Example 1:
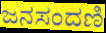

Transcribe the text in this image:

ಜನಸಂದಣಿ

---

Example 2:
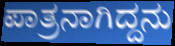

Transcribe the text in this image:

ಪಾತ್ರನಾಗಿದ್ದನು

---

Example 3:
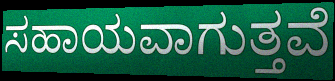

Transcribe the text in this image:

ಸಹಾಯವಾಗುತ್ತವೆ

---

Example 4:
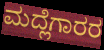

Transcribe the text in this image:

ಮದ್ಲೆಗಾರರ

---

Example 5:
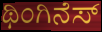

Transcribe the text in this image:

ಥಿಂಗಿನೆಸ್